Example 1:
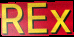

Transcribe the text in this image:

REx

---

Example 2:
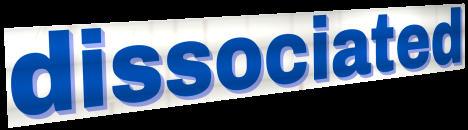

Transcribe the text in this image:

dissociated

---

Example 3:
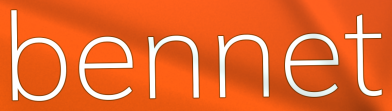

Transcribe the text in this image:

bennet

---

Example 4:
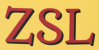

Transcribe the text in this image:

ZSL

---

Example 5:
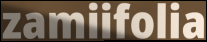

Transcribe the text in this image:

zamiifolia